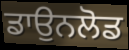
ਡਾਉਨਲੋਡ